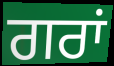
ਗਰਾਂ